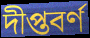
দীপ্তবর্ণ